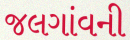
જલગાંવની